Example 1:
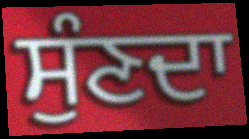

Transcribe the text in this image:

ਸੁੰਣਦਾ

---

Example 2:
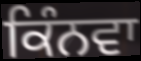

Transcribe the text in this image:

ਕਿੰਨਵਾ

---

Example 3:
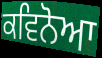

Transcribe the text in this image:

ਕਵਿਨੋਆ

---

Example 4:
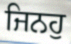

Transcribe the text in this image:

ਜਿਨਹੁ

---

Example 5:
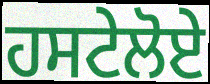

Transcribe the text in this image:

ਹਸਟੇਲੋਏ